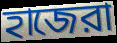
হাজেরা